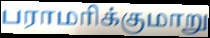
பராமரிக்குமாறு